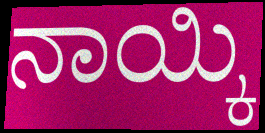
ನಾಯ್ಕಿ